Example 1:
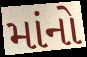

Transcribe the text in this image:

માંનો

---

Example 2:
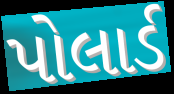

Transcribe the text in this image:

પોલાર્ડ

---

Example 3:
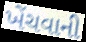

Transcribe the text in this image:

ખેંચવાની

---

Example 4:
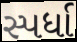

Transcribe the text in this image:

સ્પર્ધા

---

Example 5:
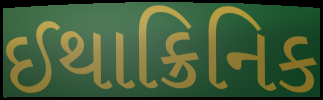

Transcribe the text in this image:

ઈથાક્રિનિક